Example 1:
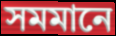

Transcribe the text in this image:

সমমানে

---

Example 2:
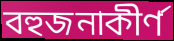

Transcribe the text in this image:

বহুজনাকীর্ণ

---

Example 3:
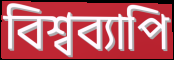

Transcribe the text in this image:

বিশ্বব্যাপি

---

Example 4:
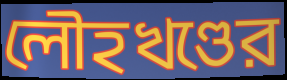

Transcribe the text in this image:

লৌহখণ্ডের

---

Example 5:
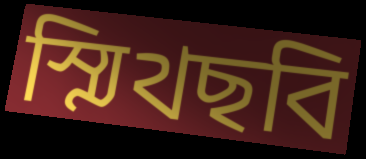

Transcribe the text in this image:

স্মিথছবি